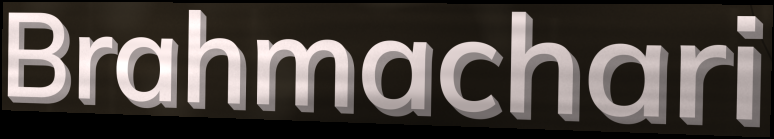
Brahmachari